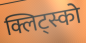
क्लिट्स्को